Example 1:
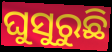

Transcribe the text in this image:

ଘୁସୁରୁଛି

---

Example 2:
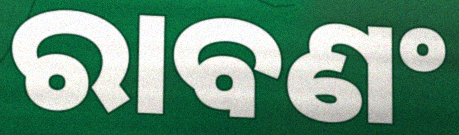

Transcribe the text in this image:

ରାବଣଂ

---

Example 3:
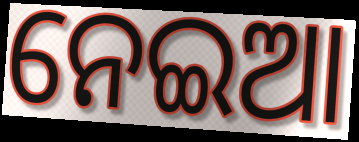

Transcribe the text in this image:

ନେଇଆ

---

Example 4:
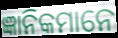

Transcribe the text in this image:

ଜ୍ଞାନିକମାନେ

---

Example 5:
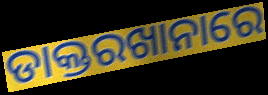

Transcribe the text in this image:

ଡାକ୍ତରଖାନାରେ